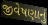
જીવેષણાનું